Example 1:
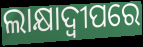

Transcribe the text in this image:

ଲାକ୍ଷାଦ୍ୱୀପରେ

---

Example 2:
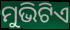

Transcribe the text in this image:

ମୁଭିଟିଏ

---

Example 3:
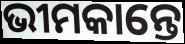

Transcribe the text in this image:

ଭୀମକାନ୍ତେ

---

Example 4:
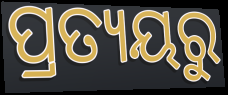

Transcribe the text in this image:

ପ୍ରତ୍ୟୟରୁ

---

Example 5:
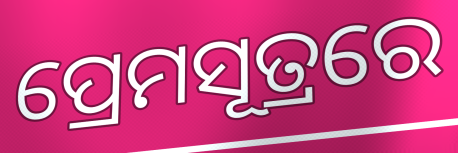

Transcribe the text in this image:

ପ୍ରେମସୂତ୍ରରେ